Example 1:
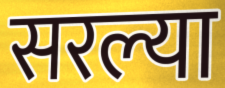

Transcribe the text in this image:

सरल्या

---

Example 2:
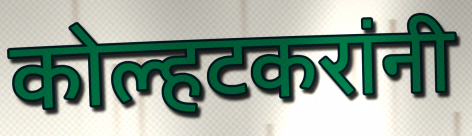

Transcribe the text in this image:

कोल्हटकरांनी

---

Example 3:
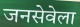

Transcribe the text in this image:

जनसेवेला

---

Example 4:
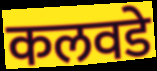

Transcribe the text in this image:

कलवडे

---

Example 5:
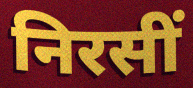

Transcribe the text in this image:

निरसीं